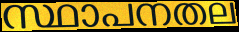
സ്ഥാപനതല